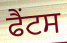
ਫੈਂਟਸ